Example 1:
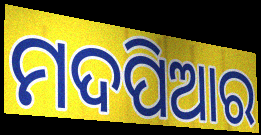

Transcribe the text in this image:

ମଦପିଆର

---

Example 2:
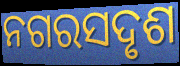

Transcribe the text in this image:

ନଗରସଦୃଶ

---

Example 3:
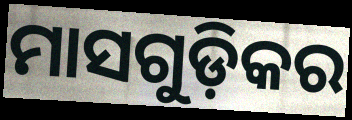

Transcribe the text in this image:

ମାସଗୁଡ଼ିକର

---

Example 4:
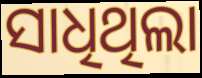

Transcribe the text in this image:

ସାଧିଥିଲା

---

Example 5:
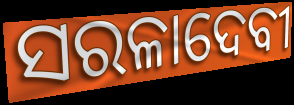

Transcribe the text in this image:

ସରଳାଦେବୀ